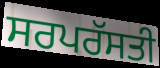
ਸਰਪਰੱਸਤੀ